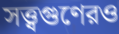
সত্ত্বগুণেরও